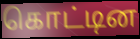
கொட்டின